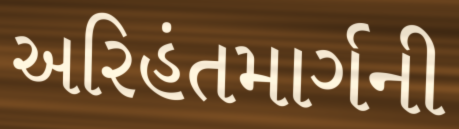
અરિહંતમાર્ગની